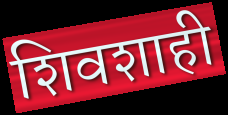
शिवशाही